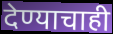
देण्याचाही